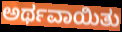
ಅರ್ಥವಾಯಿತು